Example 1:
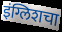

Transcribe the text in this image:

इंग्लिशचा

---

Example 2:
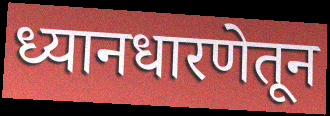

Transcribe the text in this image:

ध्यानधारणेतून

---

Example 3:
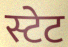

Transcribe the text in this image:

स्टेट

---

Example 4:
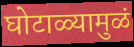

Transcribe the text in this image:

घोटाळ्यामुळं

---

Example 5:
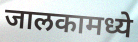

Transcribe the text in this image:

जालकामध्ये